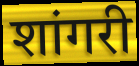
शांगरी